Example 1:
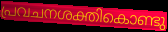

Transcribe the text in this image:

പ്രവചനശക്തികൊണ്ടു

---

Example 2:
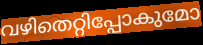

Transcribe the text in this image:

വഴിതെറ്റിപ്പോകുമോ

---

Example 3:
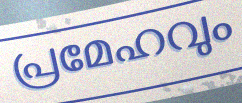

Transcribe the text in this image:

പ്രമേഹവും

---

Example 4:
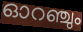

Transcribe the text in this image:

ഓറഞ്ചും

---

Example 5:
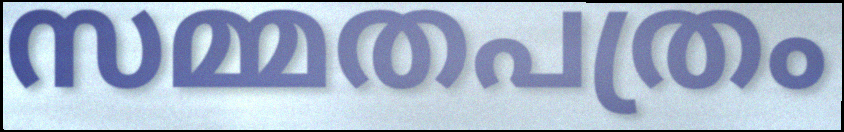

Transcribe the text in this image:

സമ്മതപത്രം